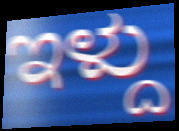
ಇಳ್ದು